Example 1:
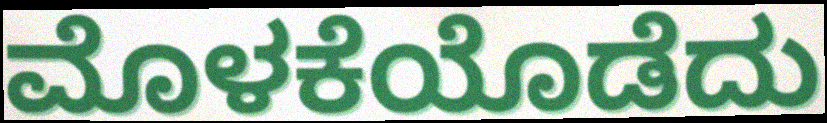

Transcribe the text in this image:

ಮೊಳಕೆಯೊಡೆದು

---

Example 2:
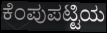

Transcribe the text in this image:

ಕೆಂಪುಪಟ್ಟಿಯ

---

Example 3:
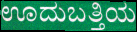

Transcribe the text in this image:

ಊದುಬತ್ತಿಯ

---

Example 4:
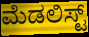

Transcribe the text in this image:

ಮೆಡಲಿಸ್ಟ್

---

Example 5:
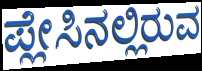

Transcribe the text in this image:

ಪ್ಲೇಸಿನಲ್ಲಿರುವ